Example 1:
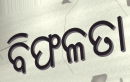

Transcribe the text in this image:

ବିଫଳତା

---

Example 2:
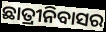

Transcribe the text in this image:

ଛାତ୍ରୀନିବାସର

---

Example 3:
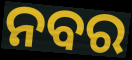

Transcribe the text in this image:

ନବର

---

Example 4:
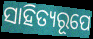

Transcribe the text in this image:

ସାହିତ୍ୟରୂପେ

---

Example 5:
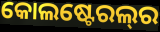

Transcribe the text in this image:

କୋଲଷ୍ଟେରଲ୍‌ର